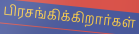
பிரசங்கிக்கிறார்கள்